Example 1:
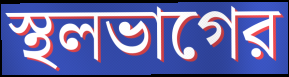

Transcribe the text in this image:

স্থলভাগের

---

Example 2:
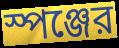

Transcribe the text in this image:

স্পঞ্জের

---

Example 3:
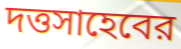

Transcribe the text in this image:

দত্তসাহেবের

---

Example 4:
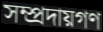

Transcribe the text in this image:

সম্প্রদায়গণ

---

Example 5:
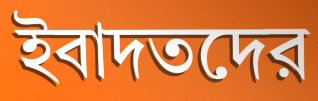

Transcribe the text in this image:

ইবাদতদের